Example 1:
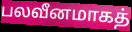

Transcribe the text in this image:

பலவீனமாகத்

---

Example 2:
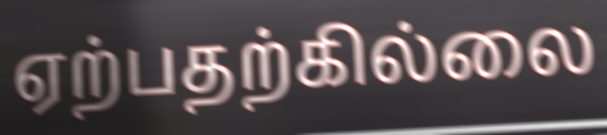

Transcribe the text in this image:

ஏற்பதற்கில்லை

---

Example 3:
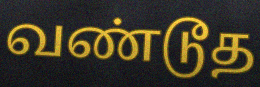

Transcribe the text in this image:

வண்டூத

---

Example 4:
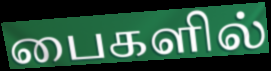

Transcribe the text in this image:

பைகளில்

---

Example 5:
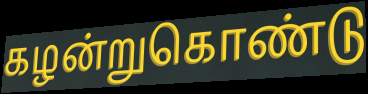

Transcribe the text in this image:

கழன்றுகொண்டு